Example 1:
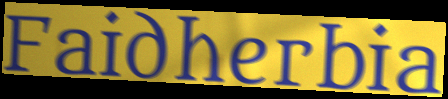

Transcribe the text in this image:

Faidherbia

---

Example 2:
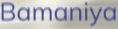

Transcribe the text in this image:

Bamaniya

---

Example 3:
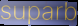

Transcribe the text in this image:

suparb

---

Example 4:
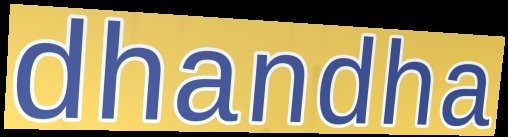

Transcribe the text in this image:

dhandha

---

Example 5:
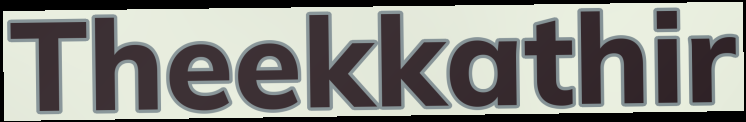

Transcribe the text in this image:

Theekkathir